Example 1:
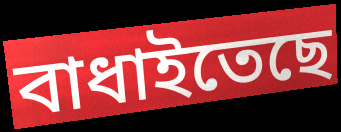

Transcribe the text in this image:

বাধাইতেছে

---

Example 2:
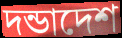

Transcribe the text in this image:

দন্ডাদেশ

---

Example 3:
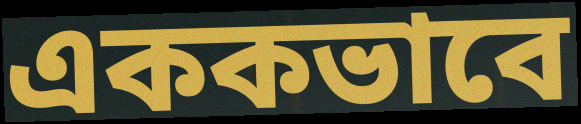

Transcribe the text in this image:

এককভাবে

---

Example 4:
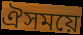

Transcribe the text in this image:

ঐসময়ে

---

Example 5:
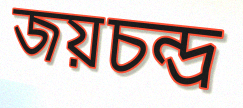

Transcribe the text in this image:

জয়চন্দ্র